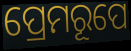
ପ୍ରେମରୂପେ